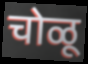
चोळू